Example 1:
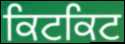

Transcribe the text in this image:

ਕਿਟਕਿਟ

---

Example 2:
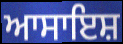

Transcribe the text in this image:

ਆਸਾਇਸ਼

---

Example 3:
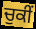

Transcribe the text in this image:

ਚੁਕੀਂ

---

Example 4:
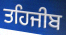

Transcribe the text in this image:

ਤਹਿਜੀਬ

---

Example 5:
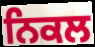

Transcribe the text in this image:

ਨਿਕਲ